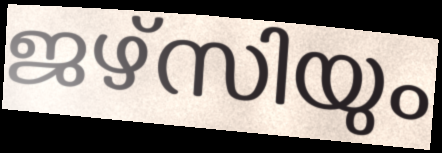
ജഴ്സിയും